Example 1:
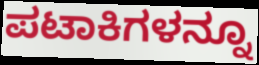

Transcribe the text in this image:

ಪಟಾಕಿಗಳನ್ನೂ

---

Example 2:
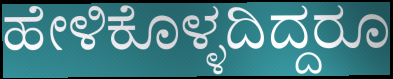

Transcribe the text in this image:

ಹೇಳಿಕೊಳ್ಳದಿದ್ದರೂ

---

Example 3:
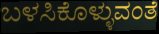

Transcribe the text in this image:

ಬಳಸಿಕೊಳ್ಳುವಂತೆ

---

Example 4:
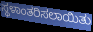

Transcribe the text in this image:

ಸ್ಥಳಾಂತರಿಸಲಾಯಿತು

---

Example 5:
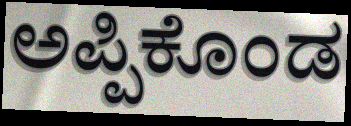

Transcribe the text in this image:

ಅಪ್ಪಿಕೊಂಡ